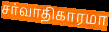
சர்வாதிகாரமா